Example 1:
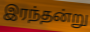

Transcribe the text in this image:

இரந்தன்று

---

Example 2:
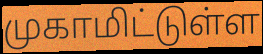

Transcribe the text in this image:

முகாமிட்டுள்ள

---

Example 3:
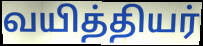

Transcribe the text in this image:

வயித்தியர்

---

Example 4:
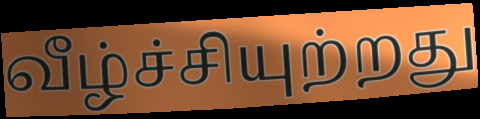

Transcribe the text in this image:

வீழ்ச்சியுற்றது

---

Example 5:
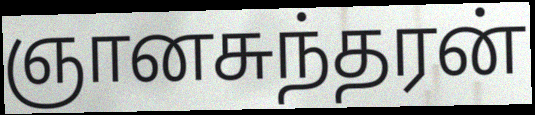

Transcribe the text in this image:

ஞானசுந்தரன்